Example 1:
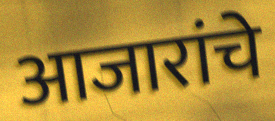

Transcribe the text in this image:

आजारांचे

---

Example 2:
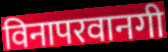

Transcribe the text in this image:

विनापरवानगी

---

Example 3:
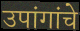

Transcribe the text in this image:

उपांगांचे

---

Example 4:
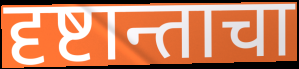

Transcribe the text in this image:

दृष्टान्ताचा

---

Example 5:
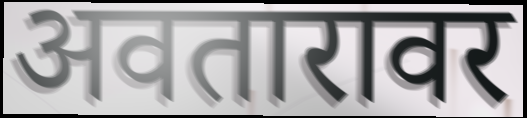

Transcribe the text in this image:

अवतारावर